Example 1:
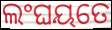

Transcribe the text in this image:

ଲଂଘୟତେ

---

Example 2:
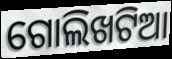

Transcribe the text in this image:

ଗୋଲିଖଟିଆ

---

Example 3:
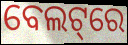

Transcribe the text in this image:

ବେଲଟ୍‌ରେ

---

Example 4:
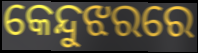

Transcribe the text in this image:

କେନ୍ଦୁଝରରେ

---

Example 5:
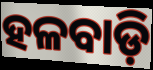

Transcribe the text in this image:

ହଳବାଡ଼ି